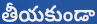
తీయకుండా